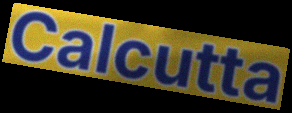
Calcutta